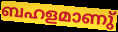
ബഹളമാണു്